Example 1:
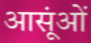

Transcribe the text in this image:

आसूंओं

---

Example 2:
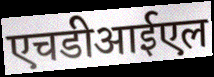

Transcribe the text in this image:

एचडीआईएल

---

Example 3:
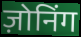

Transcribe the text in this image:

ज़ोनिंग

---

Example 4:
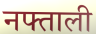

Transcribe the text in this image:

नफ्ताली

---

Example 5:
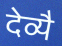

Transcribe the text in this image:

देव्यै